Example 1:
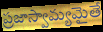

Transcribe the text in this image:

ప్రజాస్వామ్యమైతే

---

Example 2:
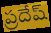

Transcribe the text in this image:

ప్రదేష్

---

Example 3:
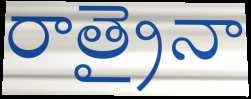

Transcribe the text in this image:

రాత్రైనా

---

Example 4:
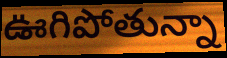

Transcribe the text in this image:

ఊగిపోతున్నా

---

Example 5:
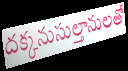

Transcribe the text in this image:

దక్కనుసుల్తానులతో